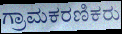
ಗ್ರಾಮಕರಣಿಕರು